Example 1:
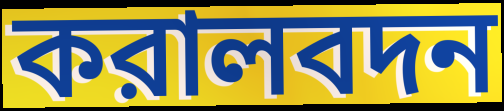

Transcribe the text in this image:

করালবদন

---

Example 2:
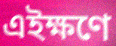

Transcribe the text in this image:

এইক্ষণে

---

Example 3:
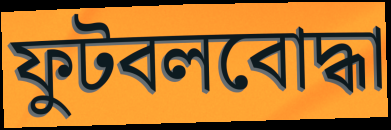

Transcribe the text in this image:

ফুটবলবোদ্ধা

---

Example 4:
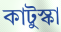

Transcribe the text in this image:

কাটুস্কা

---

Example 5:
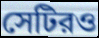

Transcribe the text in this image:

সেটিরও